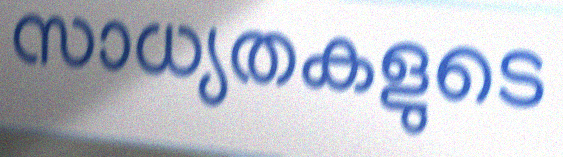
സാധ്യതകളുടെ